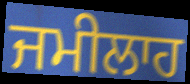
ਜਮੀਲਾਹ